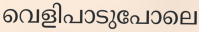
വെളിപാടുപോലെ